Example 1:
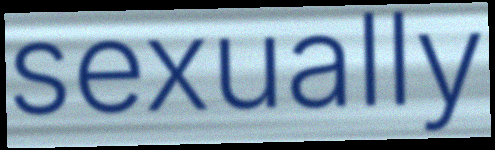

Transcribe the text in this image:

sexually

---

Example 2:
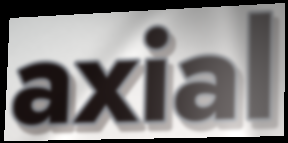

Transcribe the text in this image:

axial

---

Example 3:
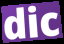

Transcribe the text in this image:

dic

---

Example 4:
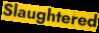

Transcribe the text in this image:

Slaughtered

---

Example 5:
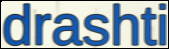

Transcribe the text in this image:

drashti